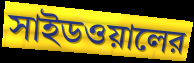
সাইডওয়ালের